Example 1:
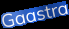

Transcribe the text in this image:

Gaastra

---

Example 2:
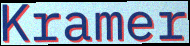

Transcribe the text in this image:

Kramer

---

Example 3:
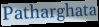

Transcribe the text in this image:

Patharghata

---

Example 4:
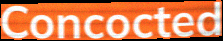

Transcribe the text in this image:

Concocted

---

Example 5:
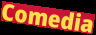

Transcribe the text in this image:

Comedia